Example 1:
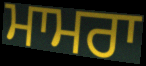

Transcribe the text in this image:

ਮਾਮਰਾ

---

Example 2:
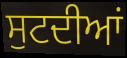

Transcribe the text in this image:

ਸੁਟਦੀਆਂ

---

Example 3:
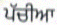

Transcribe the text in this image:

ਪੱਚੀਆ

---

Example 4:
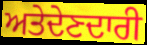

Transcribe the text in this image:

ਅਤੇਦੇਣਦਾਰੀ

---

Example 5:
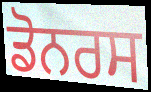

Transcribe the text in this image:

ਡੋਨਰਸ